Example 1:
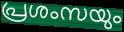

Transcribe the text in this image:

പ്രശംസയും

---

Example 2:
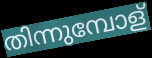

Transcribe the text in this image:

തിന്നുമ്പോള്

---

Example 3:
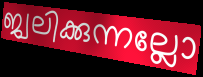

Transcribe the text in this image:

ജ്വലിക്കുന്നല്ലോ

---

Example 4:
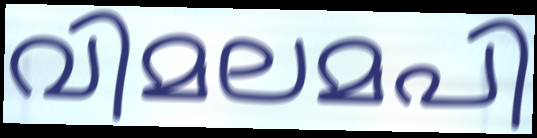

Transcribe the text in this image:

വിമലമപി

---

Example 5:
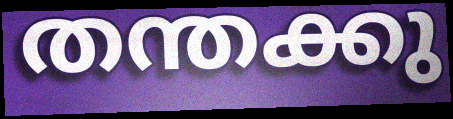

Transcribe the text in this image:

തന്തക്കു